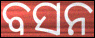
ବସନ